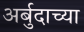
अर्बुदाच्या